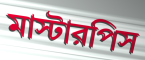
মাস্টারপিস